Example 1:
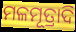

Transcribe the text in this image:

ମଳମୂତ୍ରାଦି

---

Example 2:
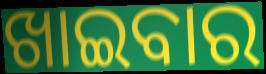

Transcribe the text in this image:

ଖାଇବାର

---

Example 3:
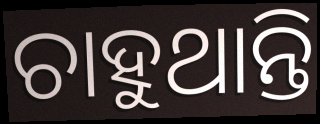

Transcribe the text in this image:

ଚାହୁଥାନ୍ତି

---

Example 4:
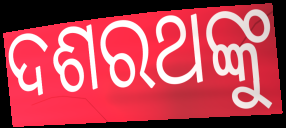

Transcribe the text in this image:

ଦଶରଥଙ୍କୁ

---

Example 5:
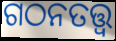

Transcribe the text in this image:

ଗଠନତତ୍ତ୍ୱ